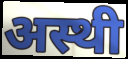
अस्थी